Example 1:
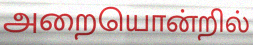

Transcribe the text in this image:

அறையொன்றில்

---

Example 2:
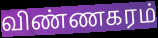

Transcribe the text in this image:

விண்ணகரம்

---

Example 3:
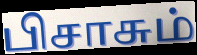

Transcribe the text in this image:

பிசாசும்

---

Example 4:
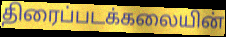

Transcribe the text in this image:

திரைப்படக்கலையின்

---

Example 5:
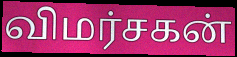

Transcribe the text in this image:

விமர்சகன்